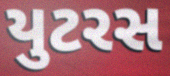
યુટરસ